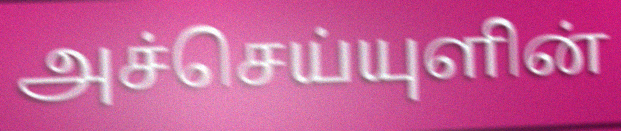
அச்செய்யுளின்